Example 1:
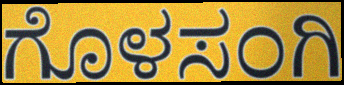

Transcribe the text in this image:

ಗೊಳಸಂಗಿ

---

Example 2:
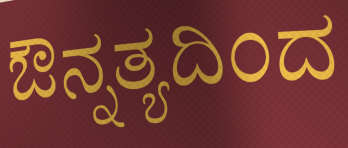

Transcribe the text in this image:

ಔನ್ನತ್ಯದಿಂದ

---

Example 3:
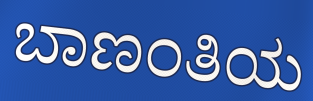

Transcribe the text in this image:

ಬಾಣಂತಿಯ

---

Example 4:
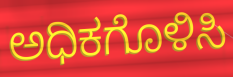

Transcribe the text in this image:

ಅಧಿಕಗೊಳಿಸಿ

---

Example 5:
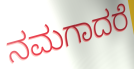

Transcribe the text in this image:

ನಮಗಾದರೆ